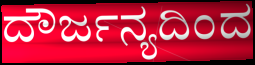
ದೌರ್ಜನ್ಯದಿಂದ